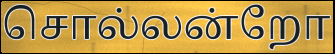
சொல்லன்றோ